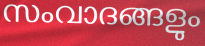
സംവാദങ്ങളും